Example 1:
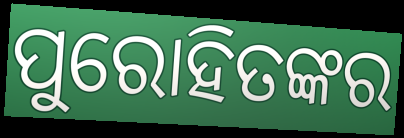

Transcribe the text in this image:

ପୁରୋହିତଙ୍କର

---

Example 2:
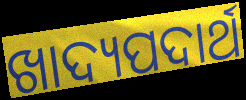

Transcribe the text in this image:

ଖାଦ୍ୟପଦାର୍ଥ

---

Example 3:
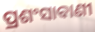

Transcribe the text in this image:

ପ୍ରଶଂସାବାଣୀ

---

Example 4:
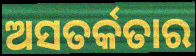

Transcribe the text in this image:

ଅସତର୍କତାର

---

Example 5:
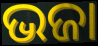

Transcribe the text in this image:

ଭଜା